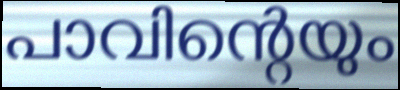
പാവിന്റെയും